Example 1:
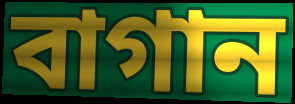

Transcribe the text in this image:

বাগান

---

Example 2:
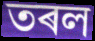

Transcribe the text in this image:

তৰল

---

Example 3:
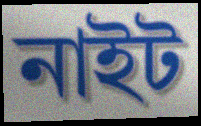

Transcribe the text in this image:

নাইট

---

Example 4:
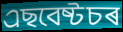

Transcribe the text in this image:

এছবেষ্টচৰ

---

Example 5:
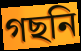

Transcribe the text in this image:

গছনি